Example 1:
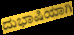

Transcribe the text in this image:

ದುಭಾಷಿಯಾಗಿ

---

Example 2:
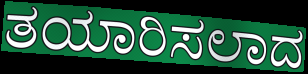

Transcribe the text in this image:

ತಯಾರಿಸಲಾದ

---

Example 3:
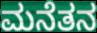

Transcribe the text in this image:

ಮನೆತನ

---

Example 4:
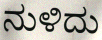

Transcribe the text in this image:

ನುಳಿದು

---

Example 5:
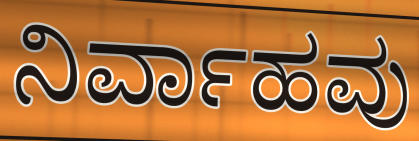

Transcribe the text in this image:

ನಿರ್ವಾಹವು